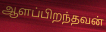
ஆளப்பிறந்தவன்